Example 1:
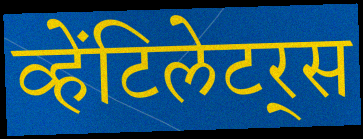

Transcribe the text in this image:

व्हेंटिलेटर्स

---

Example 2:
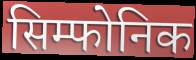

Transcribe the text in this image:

सिम्फोनिक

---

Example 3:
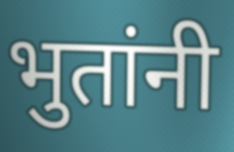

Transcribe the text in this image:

भुतांनी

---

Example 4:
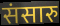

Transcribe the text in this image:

संसारु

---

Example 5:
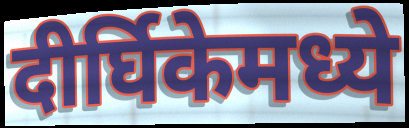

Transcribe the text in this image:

दीर्घिकेमध्ये